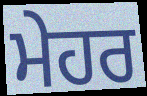
ਮੇਹਰ